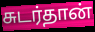
சுடர்தான்